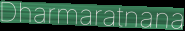
Dharmaratnana